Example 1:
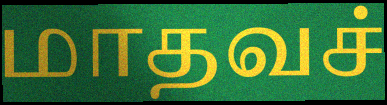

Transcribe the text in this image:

மாதவச்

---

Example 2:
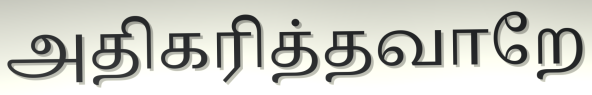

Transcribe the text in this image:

அதிகரித்தவாறே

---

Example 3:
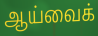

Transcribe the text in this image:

ஆய்வைக்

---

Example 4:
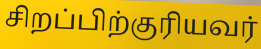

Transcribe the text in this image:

சிறப்பிற்குரியவர்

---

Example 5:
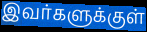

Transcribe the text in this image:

இவர்களுக்குள்